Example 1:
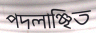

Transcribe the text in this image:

পদলাঞ্ছিত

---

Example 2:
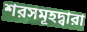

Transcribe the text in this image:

শরসমূহদ্বারা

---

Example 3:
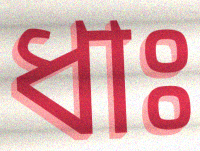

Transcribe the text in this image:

ধাঃ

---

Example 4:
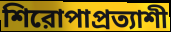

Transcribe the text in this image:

শিরোপাপ্রত্যাশী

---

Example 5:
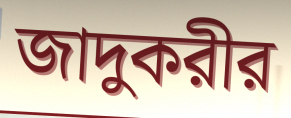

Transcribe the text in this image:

জাদুকরীর